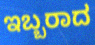
ಇಬ್ಬರಾದ